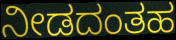
ನೀಡದಂತಹ